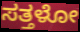
ಸತ್ತಳೋ